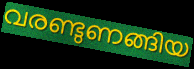
വരണ്ടുണങ്ങിയ